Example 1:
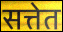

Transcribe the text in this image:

सत्तेत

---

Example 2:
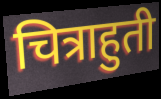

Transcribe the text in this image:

चित्राहुती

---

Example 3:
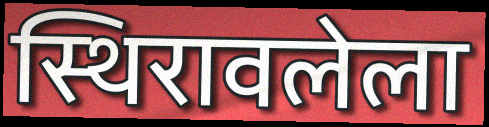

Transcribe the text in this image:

स्थिरावलेला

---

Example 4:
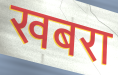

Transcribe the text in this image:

खबरा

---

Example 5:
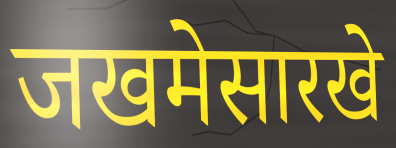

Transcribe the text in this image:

जखमेसारखे